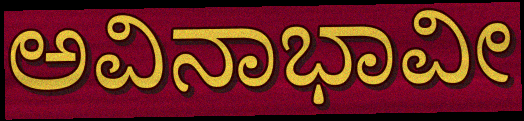
ಅವಿನಾಭಾವೀ